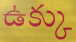
ఉక్కు